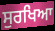
ਸੁਰਖਿਆ